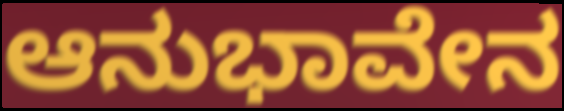
ಆನುಭಾವೇನ